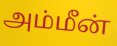
அம்மீன்